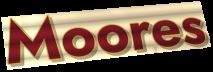
Moores